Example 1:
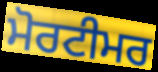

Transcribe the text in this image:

ਮੋਰਟੀਮਰ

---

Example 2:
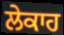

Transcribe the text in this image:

ਲੇਕਾਹ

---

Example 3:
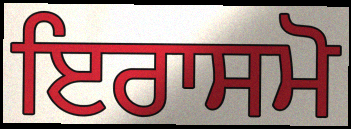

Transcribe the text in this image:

ਇਰਾਸਮੋ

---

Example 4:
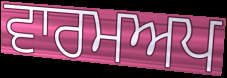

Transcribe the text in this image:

ਵਾਰਮਅਪ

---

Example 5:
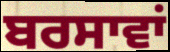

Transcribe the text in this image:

ਬਰਸਾਵਾਂ